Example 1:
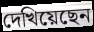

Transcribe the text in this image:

দেখিয়েছেন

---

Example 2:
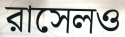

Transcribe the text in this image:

রাসেলও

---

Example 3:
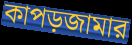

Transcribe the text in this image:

কাপড়জামার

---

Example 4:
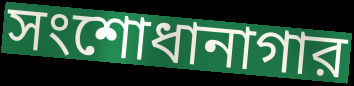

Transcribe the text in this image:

সংশোধানাগার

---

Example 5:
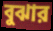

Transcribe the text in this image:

বুঝার